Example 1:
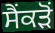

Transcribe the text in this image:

ਸੈਂਕੜੋਂ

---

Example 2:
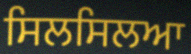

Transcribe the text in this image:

ਸਿਲਸਿਲਆ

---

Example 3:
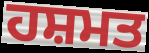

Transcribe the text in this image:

ਹਸ਼ਮਤ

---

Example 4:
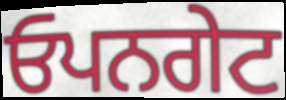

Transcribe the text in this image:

ਓਪਨਗੇਟ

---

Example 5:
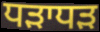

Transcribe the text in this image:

ਧੜਾਧੜ